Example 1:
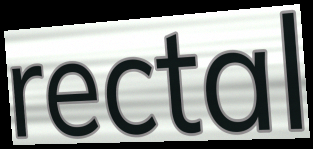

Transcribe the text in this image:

rectal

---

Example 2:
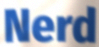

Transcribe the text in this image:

Nerd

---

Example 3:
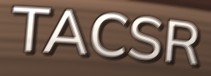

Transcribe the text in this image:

TACSR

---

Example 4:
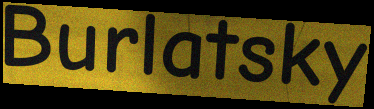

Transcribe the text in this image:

Burlatsky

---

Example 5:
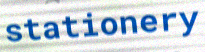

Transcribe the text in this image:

stationery